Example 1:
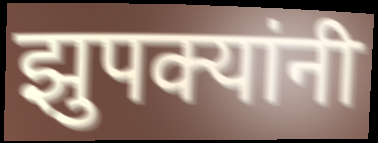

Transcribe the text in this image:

झुपक्यांनी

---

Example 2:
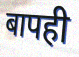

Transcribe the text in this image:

बापही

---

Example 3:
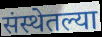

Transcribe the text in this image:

संस्थेतल्या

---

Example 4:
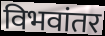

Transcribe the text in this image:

विभवांतर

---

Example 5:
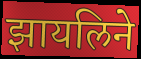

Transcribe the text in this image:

झायलिने